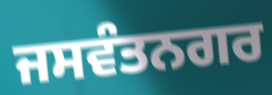
ਜਸਵੰਤਨਗਰ